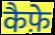
कैफ़े